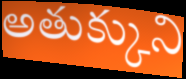
అతుక్కుని